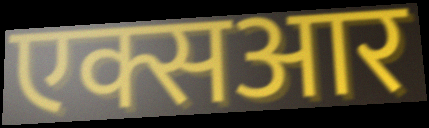
एक्सआर